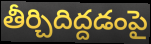
తీర్చిదిద్దడంపై